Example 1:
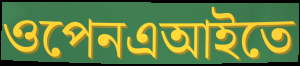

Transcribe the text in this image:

ওপেনএআইতে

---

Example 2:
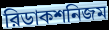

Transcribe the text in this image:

রিডাকশনিজম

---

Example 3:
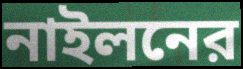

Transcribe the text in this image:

নাইলনের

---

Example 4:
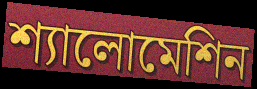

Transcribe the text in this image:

শ্যালোমেশিন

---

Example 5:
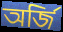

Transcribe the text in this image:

অর্জি